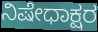
ನಿಷೇಧಾಕ್ಷರ